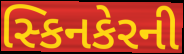
સ્કિનકેરની